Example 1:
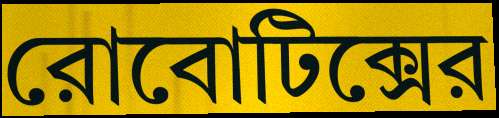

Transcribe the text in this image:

রোবোটিক্সের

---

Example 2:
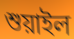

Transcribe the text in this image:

শুয়াইল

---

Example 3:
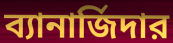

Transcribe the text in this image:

ব্যানার্জিদার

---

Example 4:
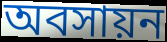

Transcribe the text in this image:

অবসায়ন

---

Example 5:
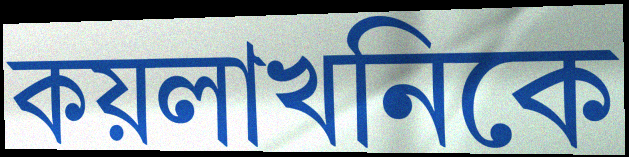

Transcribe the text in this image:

কয়লাখনিকে